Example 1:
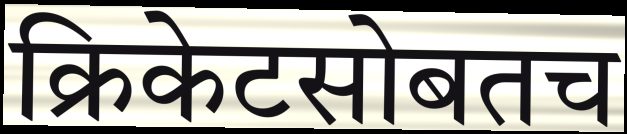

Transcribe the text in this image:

क्रिकेटसोबतच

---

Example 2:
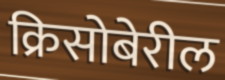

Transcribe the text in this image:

क्रिसोबेरील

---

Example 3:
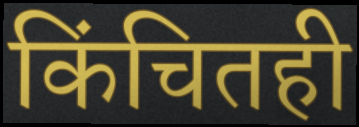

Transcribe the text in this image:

किंचितही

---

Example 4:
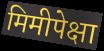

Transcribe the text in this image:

मिमीपेक्षा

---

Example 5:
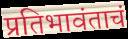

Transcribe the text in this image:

प्रतिभावंताचं